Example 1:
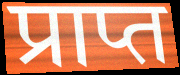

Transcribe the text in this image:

प्राप्त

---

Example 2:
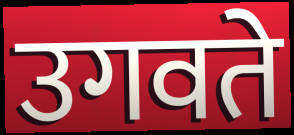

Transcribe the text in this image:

उगवते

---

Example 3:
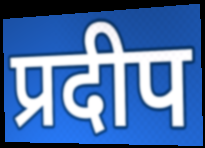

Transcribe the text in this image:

प्रदीप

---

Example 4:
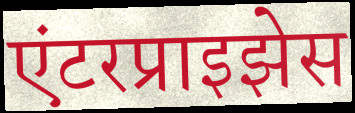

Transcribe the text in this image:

एंटरप्राइझेस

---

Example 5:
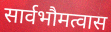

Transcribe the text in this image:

सार्वभौमत्वास